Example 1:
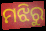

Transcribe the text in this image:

ମଝିରୁ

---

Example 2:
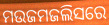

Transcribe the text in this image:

ମଉଜମଜଲିସରେ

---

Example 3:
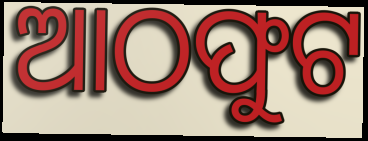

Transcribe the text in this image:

ଆଠଫୁଟ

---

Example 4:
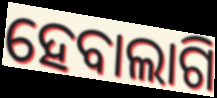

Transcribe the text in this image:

ହେବାଲାଗି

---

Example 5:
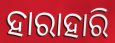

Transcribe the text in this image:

ହାରାହାରି